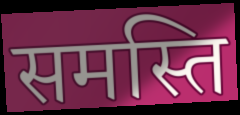
समस्ति